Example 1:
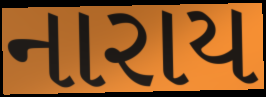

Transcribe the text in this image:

નારાય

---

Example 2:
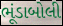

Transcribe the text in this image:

ભૂંડાબોલી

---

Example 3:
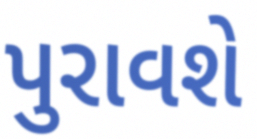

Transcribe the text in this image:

પુરાવશે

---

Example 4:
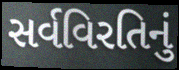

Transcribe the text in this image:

સર્વવિરતિનું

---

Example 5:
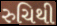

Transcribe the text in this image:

રુચિથી